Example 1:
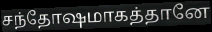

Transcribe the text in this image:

சந்தோஷமாகத்தானே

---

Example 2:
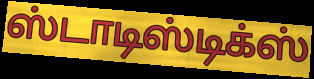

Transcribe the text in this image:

ஸ்டாடிஸ்டிக்ஸ்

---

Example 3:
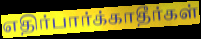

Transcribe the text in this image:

எதிர்பார்க்காதீர்கள்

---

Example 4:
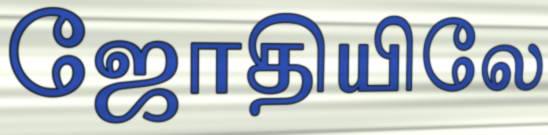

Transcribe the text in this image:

ஜோதியிலே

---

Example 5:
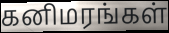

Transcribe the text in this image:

கனிமரங்கள்